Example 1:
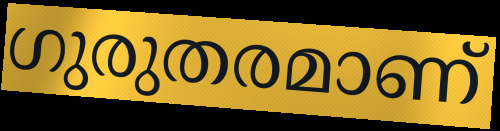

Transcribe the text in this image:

ഗുരുതരമാണ്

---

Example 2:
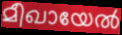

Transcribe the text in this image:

മീഖായേൽ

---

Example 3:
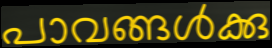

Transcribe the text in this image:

പാവങ്ങൾക്കു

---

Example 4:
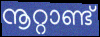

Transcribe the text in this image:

നൂറ്റാണ്ട്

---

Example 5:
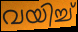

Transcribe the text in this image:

വയിച്ച്